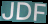
JDF